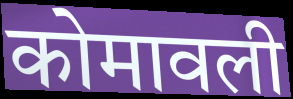
कोमावली